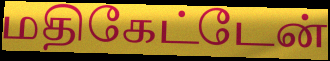
மதிகேட்டேன்